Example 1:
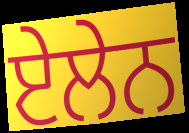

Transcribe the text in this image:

ਏਲੇਨ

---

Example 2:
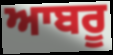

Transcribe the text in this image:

ਆਬਰੂ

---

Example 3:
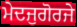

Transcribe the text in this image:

ਮੇਦਜੁਗੋਰਜੇ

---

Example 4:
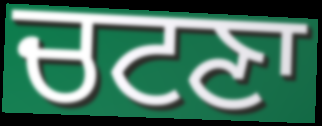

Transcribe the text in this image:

ਚਟਣਾ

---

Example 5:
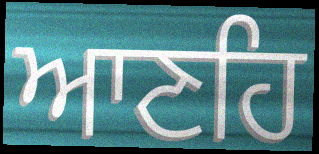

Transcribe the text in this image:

ਆਣਹਿ